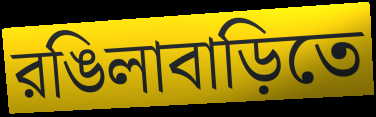
রঙিলাবাড়িতে